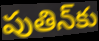
పుతిన్‌కు